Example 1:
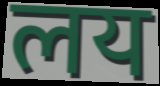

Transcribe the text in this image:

लय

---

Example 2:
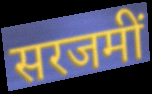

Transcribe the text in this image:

सरजमीं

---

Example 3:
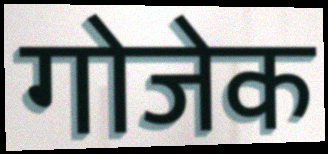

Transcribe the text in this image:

गोजेक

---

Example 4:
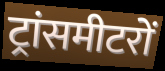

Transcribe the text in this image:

ट्रांसमीटरों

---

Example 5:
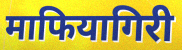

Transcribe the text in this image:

माफियागिरी